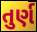
તુર્ણ